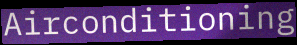
Airconditioning